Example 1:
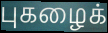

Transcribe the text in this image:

புகழைக்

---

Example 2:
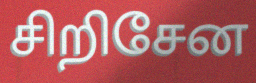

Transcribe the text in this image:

சிறிசேன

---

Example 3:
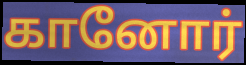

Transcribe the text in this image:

கானோர்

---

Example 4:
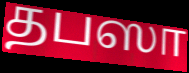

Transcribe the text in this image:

தபஸா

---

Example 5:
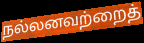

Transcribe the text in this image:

நல்லனவற்றைத்